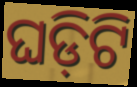
ଘଡ଼ିଟି